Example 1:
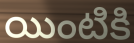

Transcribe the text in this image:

యింటికి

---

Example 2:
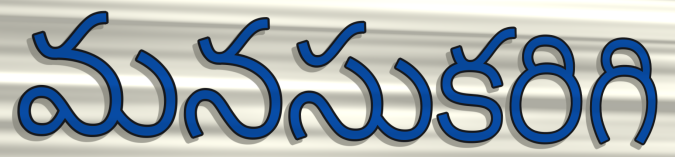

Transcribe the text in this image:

మనసుకరిగి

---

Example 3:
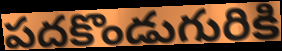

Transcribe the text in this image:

పదకొండుగురికి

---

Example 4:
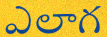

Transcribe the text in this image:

ఎలాగ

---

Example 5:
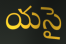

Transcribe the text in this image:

యసై